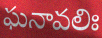
ఘనావలిః